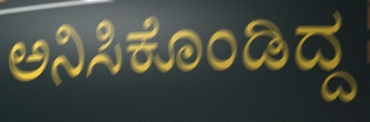
ಅನಿಸಿಕೊಂಡಿದ್ದ